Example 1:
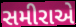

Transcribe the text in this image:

સમીરાએ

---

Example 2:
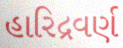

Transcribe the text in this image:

હારિદ્રવર્ણ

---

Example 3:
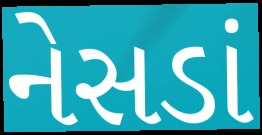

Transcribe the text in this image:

નેસડાં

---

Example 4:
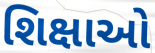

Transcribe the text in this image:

શિક્ષાઓ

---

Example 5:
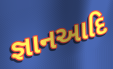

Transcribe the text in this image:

જ્ઞાનઆદિ